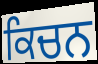
ਕਿਚਨ